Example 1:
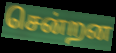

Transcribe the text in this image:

சென்றன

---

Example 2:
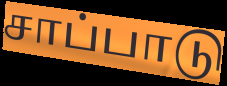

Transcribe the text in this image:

சாப்பாடு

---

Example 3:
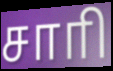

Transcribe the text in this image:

சாரி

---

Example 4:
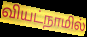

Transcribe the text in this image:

வியட்நாமில்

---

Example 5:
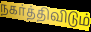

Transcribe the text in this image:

நகர்த்திவிடும்